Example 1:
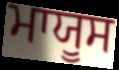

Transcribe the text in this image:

ਮਾਯੂਸ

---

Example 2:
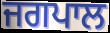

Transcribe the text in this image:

ਜਗਪਾਲ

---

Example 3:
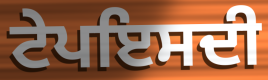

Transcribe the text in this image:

ਟੇਪਇਸਦੀ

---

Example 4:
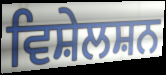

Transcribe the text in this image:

ਵਿਸ਼ੇਲਸ਼ਨ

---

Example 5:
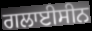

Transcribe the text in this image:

ਗਲਾਈਸੀਨ